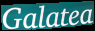
Galatea